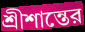
শ্রীশান্তের